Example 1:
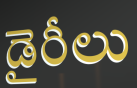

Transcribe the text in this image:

డైరీలు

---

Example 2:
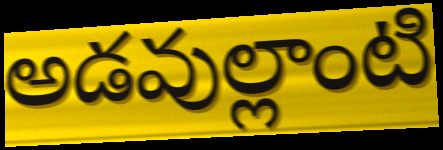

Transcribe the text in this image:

అడవుల్లాంటి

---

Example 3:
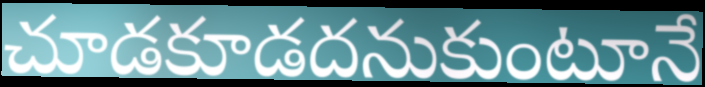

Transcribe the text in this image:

చూడకూడదనుకుంటూనే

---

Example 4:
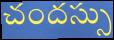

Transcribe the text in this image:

చందస్సు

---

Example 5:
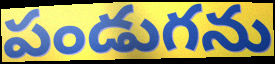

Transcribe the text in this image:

పండుగను